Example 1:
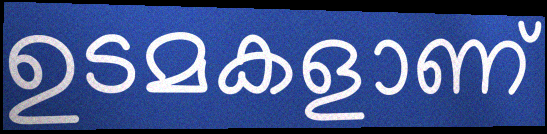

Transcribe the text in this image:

ഉടമകളാണ്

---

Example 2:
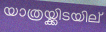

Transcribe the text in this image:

യാത്രയ്ക്കിടയില്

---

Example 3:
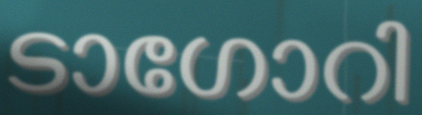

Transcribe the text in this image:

ടാഗോറി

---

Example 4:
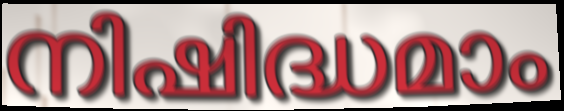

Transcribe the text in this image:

നിഷിദ്ധമാം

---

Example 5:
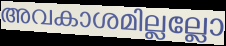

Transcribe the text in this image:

അവകാശമില്ലല്ലോ